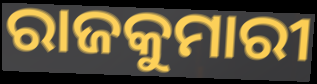
ରାଜକୁମାରୀ